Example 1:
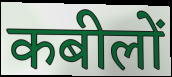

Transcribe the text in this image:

कबीलों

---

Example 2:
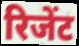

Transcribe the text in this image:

रिजेंट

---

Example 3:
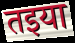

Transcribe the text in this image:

तइया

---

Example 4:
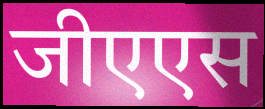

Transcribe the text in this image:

जीएएस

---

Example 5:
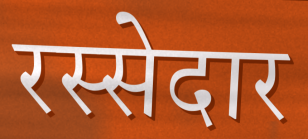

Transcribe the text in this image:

रस्सेदार